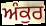
ਅੰਕੁਰ